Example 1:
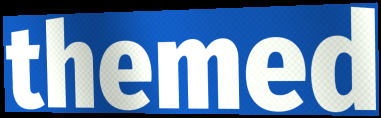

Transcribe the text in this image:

themed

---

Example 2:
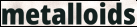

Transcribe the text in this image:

metalloids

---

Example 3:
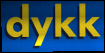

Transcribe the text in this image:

dykk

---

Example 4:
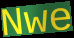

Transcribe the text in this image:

Nwe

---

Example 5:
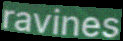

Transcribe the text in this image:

ravines